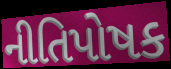
નીતિપોષક